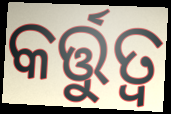
କର୍ତ୍ତୁତ୍ୱ